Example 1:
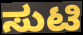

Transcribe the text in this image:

ಸುಟಿ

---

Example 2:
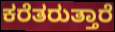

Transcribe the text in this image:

ಕರೆತರುತ್ತಾರೆ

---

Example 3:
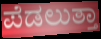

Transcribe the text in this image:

ಪೆಡಲುತ್ತಾ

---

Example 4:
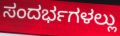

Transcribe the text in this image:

ಸಂದರ್ಭಗಳಲ್ಲು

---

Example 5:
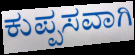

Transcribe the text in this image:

ಕುಪ್ಪಸವಾಗಿ